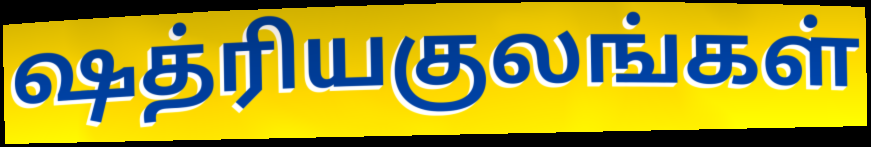
ஷத்ரியகுலங்கள்